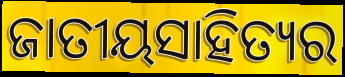
ଜାତୀୟସାହିତ୍ୟର